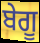
ਬੇਗੂ